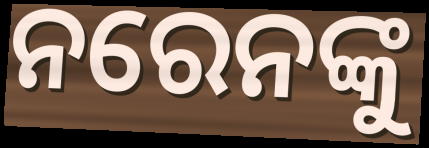
ନରେନଙ୍କୁ